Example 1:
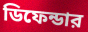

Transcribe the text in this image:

ডিফেন্ডার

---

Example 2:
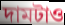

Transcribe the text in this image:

দামটাও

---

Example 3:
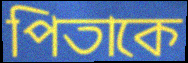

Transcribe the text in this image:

পিতাকে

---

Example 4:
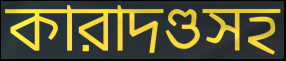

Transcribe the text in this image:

কারাদণ্ডসহ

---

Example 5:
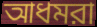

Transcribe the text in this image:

আধমরা